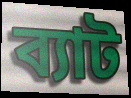
ব্যাট